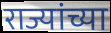
राज्यांच्या